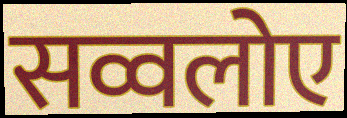
सव्वलोए